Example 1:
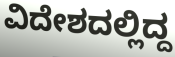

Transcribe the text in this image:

ವಿದೇಶದಲ್ಲಿದ್ದ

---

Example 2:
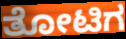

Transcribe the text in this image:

ತೋಟಿಗ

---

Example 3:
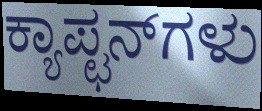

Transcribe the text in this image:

ಕ್ಯಾಪ್ಟನ್‌ಗಳು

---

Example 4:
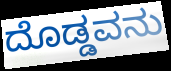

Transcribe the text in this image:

ದೊಡ್ಡವನು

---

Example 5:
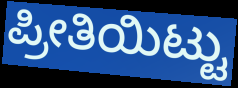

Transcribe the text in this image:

ಪ್ರೀತಿಯಿಟ್ಟು